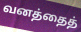
வனத்தைத்